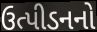
ઉત્પીડનનો